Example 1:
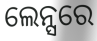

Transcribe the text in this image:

ଲେନ୍ସରେ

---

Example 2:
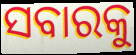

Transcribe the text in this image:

ସବାରକୁ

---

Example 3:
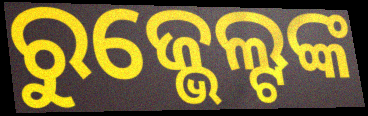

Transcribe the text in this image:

ରୁଜ୍ଭେଲ୍ଟଙ୍କ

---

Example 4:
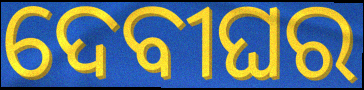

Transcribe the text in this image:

ଦେବୀଘର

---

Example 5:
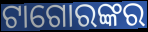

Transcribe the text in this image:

ଟାଗୋରଙ୍କର